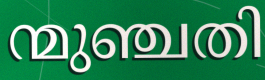
ന്മുഞ്ചതി